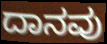
ದಾನವು